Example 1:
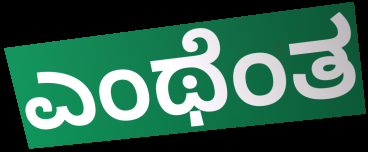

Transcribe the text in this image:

ಎಂಥೆಂತ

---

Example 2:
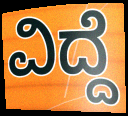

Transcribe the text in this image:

ವಿದ್ದೆ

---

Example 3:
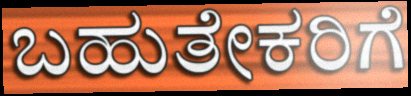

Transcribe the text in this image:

ಬಹುತೇಕರಿಗೆ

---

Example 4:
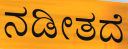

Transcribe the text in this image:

ನಡೀತದೆ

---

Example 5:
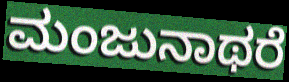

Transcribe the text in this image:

ಮಂಜುನಾಥರೆ